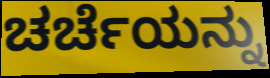
ಚರ್ಚೆಯನ್ನು